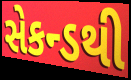
સેકન્ડથી